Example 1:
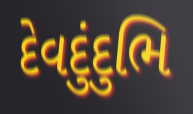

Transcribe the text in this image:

દેવદુંદુભિ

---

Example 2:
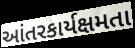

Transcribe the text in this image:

આંતરકાર્યક્ષમતા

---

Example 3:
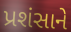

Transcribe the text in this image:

પ્રશંસાને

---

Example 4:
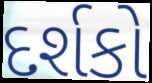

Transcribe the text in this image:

દર્શકો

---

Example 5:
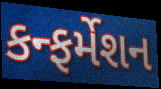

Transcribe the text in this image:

કન્ફર્મેશન